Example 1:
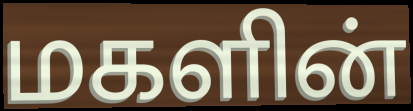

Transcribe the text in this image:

மகளின்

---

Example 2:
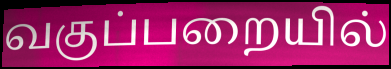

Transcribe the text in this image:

வகுப்பறையில்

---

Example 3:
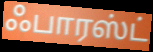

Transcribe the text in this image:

ஃபாரஸ்ட்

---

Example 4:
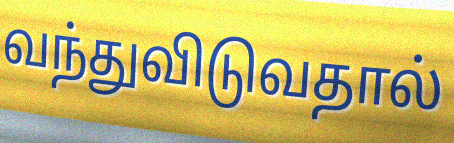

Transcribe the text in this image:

வந்துவிடுவதால்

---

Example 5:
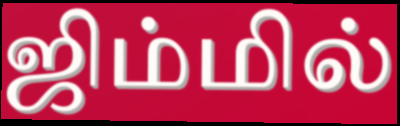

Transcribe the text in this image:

ஜிம்மில்